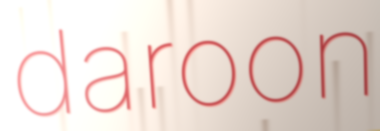
daroon